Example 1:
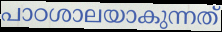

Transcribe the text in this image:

പാഠശാലയാകുന്നത്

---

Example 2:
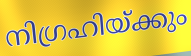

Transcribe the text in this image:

നിഗ്രഹിയ്ക്കും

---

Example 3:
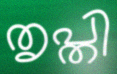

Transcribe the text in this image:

തൃപ്തി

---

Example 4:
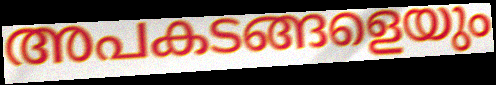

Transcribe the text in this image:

അപകടങ്ങളെയും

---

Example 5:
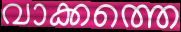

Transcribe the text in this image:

വാക്കത്തെ